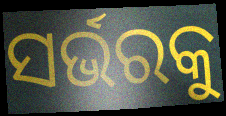
ସର୍ଭରକୁ